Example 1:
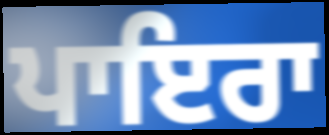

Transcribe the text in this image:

ਪਾਇਰਾ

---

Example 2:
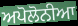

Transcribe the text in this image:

ਅਪੋਲੋਨੀਆ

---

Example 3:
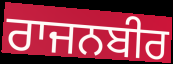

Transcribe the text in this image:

ਰਾਜਨਬੀਰ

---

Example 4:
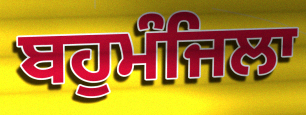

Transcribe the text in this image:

ਬਹੁਮੰਜਿਲਾ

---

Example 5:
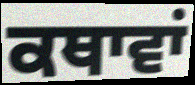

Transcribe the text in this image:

ਕਥਾਵਾਂ